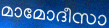
മാമോദീസാ